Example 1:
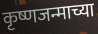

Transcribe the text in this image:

कृष्णजन्माच्या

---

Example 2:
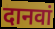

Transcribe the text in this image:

दानवां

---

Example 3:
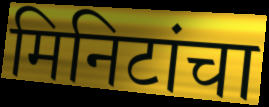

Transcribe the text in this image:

मिनिटांचा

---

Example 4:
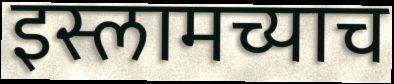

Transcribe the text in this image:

इस्लामच्याच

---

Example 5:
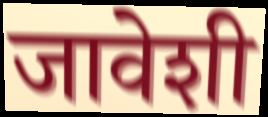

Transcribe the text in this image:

जावेशी